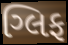
ગ્લિફ